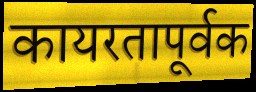
कायरतापूर्वक